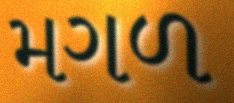
મગળ